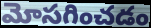
మోసగించడం